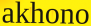
akhono